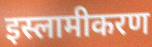
इस्लामीकरण